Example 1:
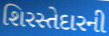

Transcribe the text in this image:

શિરસ્તેદારની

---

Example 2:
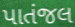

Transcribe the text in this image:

પાતંજલ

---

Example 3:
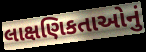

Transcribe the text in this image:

લાક્ષણિકતાઓનું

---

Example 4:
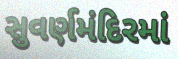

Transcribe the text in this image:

સુવર્ણમંદિરમાં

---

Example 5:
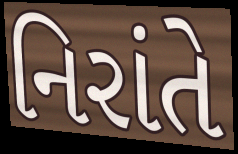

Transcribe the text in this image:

નિરાંતે